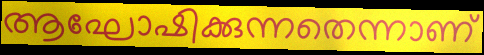
ആഘോഷിക്കുന്നതെന്നാണ്